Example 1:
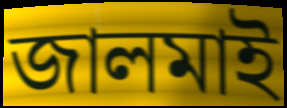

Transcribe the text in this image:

জালমাই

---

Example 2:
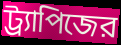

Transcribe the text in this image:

ট্র্যাপিজের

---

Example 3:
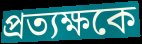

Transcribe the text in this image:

প্রত্যক্ষকে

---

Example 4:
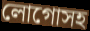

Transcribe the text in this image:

লোগোসহ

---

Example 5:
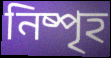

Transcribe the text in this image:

নিষ্পৃহ